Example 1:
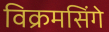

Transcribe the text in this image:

विक्रमसिंगे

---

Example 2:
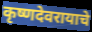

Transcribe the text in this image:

कृष्णदेवरायाचे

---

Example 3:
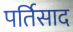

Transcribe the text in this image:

पर्तिसाद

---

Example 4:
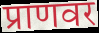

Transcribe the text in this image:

प्राणवर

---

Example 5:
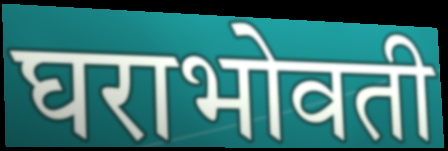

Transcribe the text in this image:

घराभोवती